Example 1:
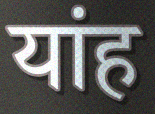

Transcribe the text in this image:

यांह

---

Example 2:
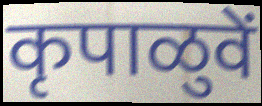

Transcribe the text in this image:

कृपाळुवें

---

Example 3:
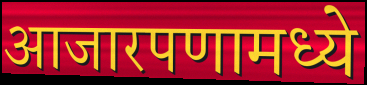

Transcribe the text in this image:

आजारपणामध्ये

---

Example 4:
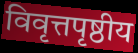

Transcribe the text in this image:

विवृत्तपृष्ठीय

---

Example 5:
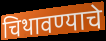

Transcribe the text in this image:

चिथावण्याचे